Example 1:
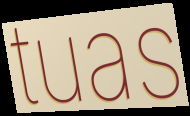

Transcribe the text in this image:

tuas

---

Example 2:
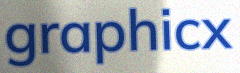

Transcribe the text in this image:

graphicx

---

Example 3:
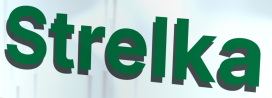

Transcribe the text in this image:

Strelka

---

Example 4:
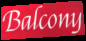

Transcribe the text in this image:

Balcony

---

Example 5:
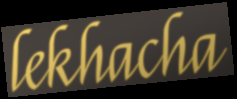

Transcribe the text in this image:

lekhacha